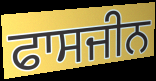
ਫਾਸਜੀਨ